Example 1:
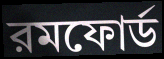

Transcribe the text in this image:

রমফোর্ড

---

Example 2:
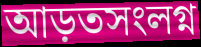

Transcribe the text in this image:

আড়তসংলগ্ন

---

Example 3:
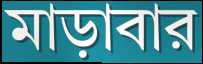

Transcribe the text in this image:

মাড়াবার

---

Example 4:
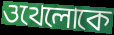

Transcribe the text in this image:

ওথেলোকে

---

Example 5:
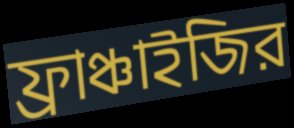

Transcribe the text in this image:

ফ্রাঞ্চাইজির